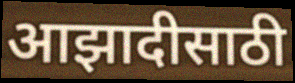
आझादीसाठी